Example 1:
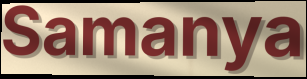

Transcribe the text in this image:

Samanya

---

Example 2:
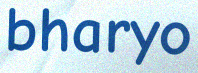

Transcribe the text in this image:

bharyo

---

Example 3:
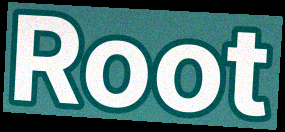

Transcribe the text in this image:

Root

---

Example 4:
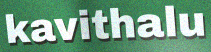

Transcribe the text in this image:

kavithalu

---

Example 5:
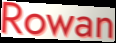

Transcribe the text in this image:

Rowan